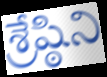
శ్రేష్ఠిని